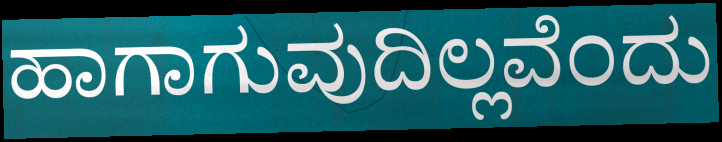
ಹಾಗಾಗುವುದಿಲ್ಲವೆಂದು